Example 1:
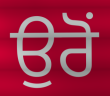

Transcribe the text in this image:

ਉਰੋਂ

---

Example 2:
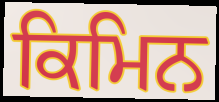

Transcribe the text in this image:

ਕਿਮਿਨ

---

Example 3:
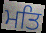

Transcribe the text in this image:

ਮਤਿ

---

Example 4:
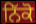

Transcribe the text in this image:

ਨਿੱਕੋ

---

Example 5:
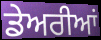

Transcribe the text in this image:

ਡੇਅਰੀਆਂ